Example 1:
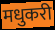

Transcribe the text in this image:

मधुकरी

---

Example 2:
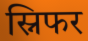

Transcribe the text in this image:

स्निफर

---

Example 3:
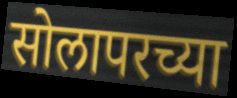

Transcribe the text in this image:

सोलापरच्या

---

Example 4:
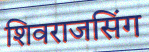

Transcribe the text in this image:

शिवराजसिंग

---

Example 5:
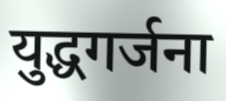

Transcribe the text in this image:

युद्धगर्जना